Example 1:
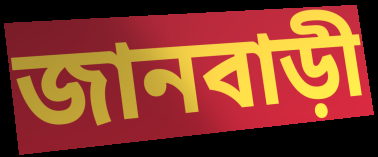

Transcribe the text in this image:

জানবাড়ী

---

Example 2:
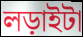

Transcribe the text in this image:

লড়াইটা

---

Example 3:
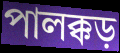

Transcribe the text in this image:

পালক্কড়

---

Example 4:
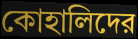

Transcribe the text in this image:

কোহালিদের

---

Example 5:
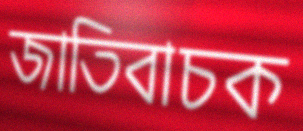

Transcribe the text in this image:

জাতিবাচক